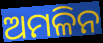
ଅମଳିନ